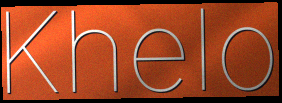
Khelo